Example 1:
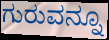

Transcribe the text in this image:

ಗುರುವನ್ನೂ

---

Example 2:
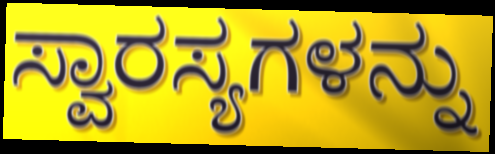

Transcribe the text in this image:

ಸ್ವಾರಸ್ಯಗಳನ್ನು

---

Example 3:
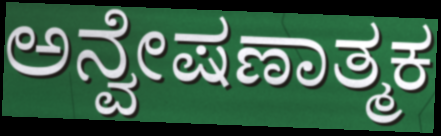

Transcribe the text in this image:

ಅನ್ವೇಷಣಾತ್ಮಕ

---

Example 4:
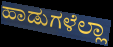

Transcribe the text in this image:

ಹಾಡುಗಳೆಲ್ಲಾ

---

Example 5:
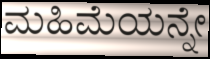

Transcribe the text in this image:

ಮಹಿಮೆಯನ್ನೇ